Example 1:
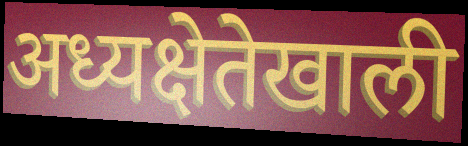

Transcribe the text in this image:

अध्यक्षेतेखाली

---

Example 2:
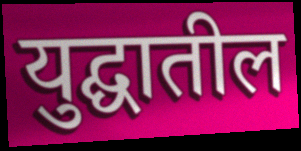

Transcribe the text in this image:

युद्घातील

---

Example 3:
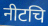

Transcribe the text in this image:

नीटचि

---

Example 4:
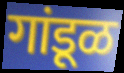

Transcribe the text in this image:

गांडूळ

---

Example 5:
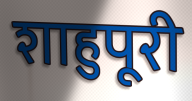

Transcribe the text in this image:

शाहुपूरी